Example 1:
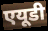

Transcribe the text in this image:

एयूडी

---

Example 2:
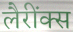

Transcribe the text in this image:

लैरींक्स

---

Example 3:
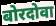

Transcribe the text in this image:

बोरदोवा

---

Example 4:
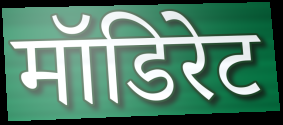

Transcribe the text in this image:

मॉडिरेट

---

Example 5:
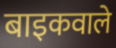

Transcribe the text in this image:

बाइकवाले